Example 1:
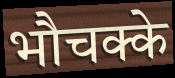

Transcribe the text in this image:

भौचक्के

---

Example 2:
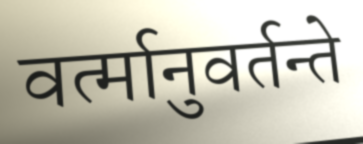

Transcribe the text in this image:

वर्त्मानुवर्तन्ते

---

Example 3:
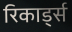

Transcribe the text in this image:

रिकार्ड्स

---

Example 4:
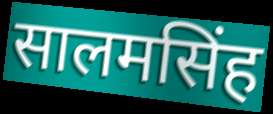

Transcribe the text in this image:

सालमसिंह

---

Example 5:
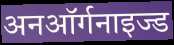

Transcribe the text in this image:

अनऑर्गनाइज्ड